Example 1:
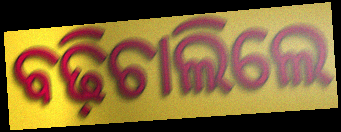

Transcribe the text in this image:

ବଢ଼ିଚାଲିଲେ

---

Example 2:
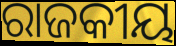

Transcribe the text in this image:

ରାଜକୀୟ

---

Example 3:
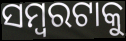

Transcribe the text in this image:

ସମ୍ବରଟାକୁ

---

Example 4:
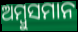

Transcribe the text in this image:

ଅମ୍ବୁସମାନ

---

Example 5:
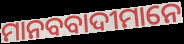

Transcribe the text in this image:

ମାନବବାଦୀମାନେ